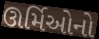
ઊર્મિઓનો